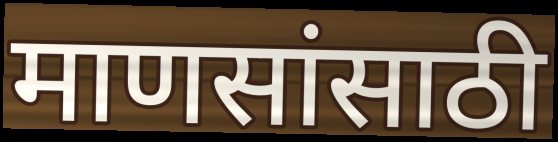
माणसांसाठी